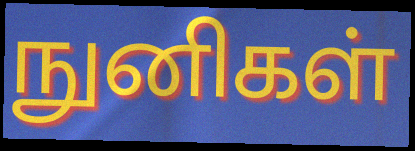
நுனிகள்